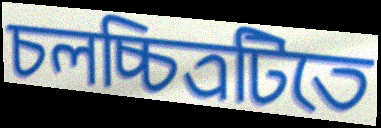
চলচ্চিত্রটিতে